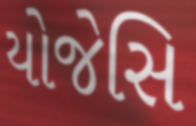
યોજેસિ